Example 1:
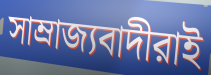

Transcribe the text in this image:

সাম্রাজ্যবাদীরাই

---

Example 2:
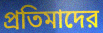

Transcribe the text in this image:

প্রতিমাদের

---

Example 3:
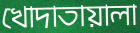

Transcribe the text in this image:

খোদাতায়ালা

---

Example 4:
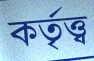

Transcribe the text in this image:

কর্তৃত্ত্ব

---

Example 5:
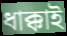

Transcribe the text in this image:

ধাক্কাই